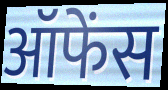
ऑफेंस